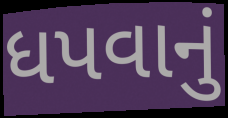
ધપવાનું